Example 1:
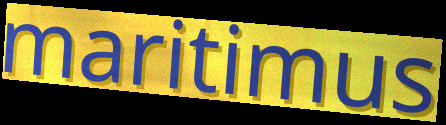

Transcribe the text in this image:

maritimus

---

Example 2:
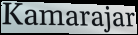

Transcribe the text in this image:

Kamarajar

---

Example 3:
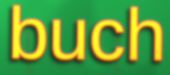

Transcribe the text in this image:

buch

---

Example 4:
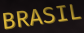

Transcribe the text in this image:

BRASIL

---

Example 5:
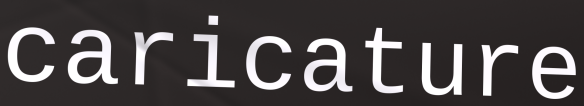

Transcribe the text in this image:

caricature